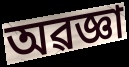
অৱজ্ঞা